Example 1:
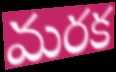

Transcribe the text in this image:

మరక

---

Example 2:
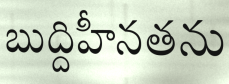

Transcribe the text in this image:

బుద్దిహీనతను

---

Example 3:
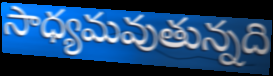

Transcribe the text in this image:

సాధ్యమవుతున్నది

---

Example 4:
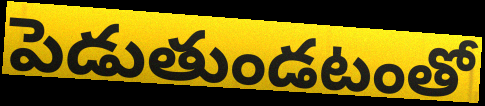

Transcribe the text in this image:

పెడుతుండటంతో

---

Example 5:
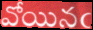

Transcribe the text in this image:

వోయినఁ